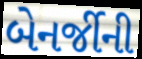
બેનર્જીની